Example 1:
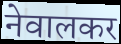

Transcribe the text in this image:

नेवालकर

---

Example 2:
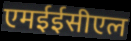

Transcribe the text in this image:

एमईईसीएल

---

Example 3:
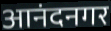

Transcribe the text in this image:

आनंदनगर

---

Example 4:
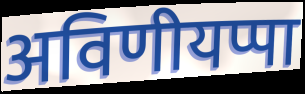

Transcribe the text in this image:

अविणीयप्पा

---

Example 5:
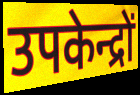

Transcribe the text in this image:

उपकेन्द्रों